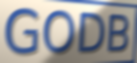
GODB